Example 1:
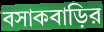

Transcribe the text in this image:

বসাকবাড়ির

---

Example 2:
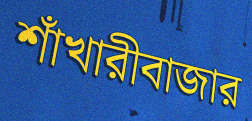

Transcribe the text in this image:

শাঁখারীবাজার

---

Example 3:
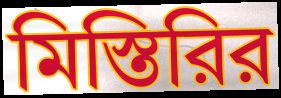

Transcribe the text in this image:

মিস্তিরির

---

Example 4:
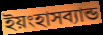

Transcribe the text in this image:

ইয়ংহাসব্যান্ড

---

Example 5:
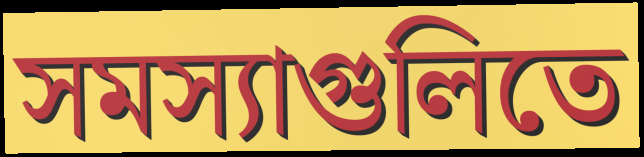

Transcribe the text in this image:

সমস্যাগুলিতে